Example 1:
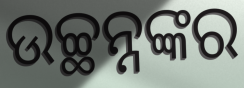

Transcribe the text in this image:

ଉଚ୍ଛନ୍ନଙ୍କର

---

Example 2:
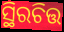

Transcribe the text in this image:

ସ୍ଥିରଚିତ୍ତ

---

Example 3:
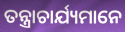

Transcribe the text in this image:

ତନ୍ତ୍ରାଚାର୍ଯ୍ୟମାନେ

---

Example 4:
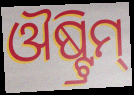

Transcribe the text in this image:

ଔଷ୍ଟ୍ରିମ୍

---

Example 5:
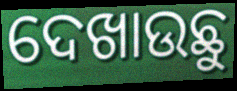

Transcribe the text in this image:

ଦେଖାଉଛୁ